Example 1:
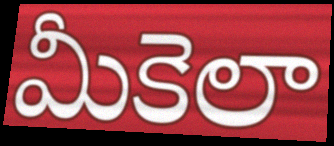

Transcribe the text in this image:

మీకెలా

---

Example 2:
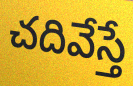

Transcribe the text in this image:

చదివేస్తే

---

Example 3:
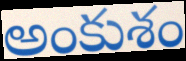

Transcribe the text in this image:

అంకుశం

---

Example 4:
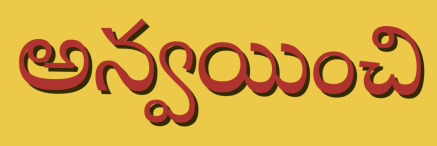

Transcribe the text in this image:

అన్వయించి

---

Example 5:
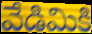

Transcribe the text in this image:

వేడిమికి